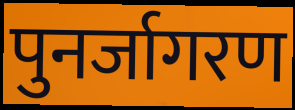
पुनर्जागरण